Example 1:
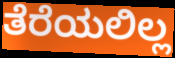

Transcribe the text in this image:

ತೆರೆಯಲಿಲ್ಲ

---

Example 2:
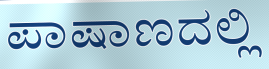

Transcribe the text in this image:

ಪಾಷಾಣದಲ್ಲಿ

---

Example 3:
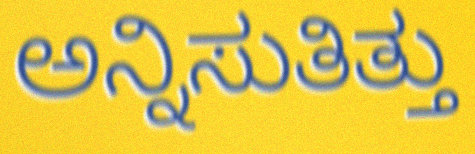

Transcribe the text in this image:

ಅನ್ನಿಸುತಿತ್ತು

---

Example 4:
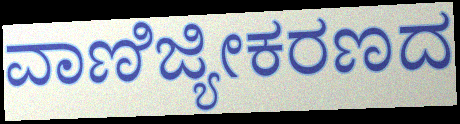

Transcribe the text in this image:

ವಾಣಿಜ್ಯೀಕರಣದ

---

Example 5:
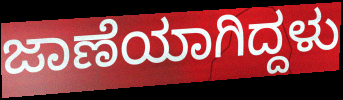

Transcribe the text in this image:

ಜಾಣೆಯಾಗಿದ್ದಳು